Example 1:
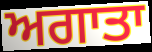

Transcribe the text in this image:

ਅਗਾਤਾ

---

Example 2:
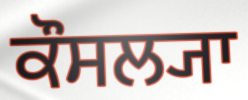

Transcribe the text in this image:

ਕੌਸਲ੍ਯਾ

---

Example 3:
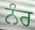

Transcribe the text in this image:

ਨੰਰ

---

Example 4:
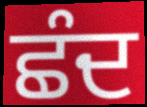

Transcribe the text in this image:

ਛੰਦ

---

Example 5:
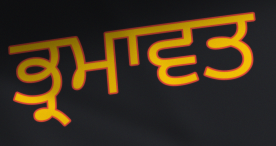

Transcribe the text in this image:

ਭ੍ਰਮਾਵਤ